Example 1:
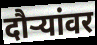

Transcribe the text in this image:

दौऱ्यांवर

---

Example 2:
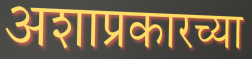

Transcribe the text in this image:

अशाप्रकारच्या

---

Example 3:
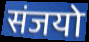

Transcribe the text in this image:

संजयो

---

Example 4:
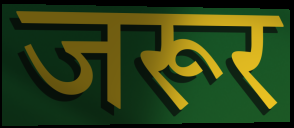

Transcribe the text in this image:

जरूर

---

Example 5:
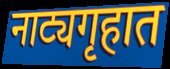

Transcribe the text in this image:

नाट्यगृहात